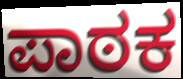
ಪಾಠಕ